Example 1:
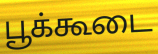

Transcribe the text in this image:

பூக்கூடை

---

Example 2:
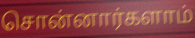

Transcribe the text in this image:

சொன்னார்களாம்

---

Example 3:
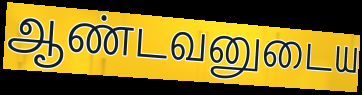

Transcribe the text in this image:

ஆண்டவனுடைய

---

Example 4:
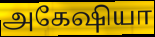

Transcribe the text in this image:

அகேஷியா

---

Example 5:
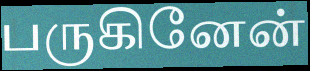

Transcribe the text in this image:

பருகினேன்